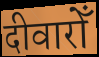
दीवारोँ